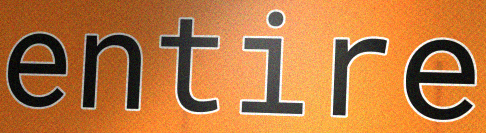
entire